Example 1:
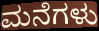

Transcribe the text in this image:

ಮನೆಗಳು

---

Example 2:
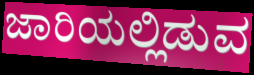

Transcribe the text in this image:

ಜಾರಿಯಲ್ಲಿಡುವ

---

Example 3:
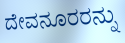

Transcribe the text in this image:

ದೇವನೂರರನ್ನು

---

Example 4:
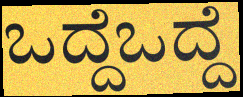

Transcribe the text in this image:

ಒದ್ದೆಒದ್ದೆ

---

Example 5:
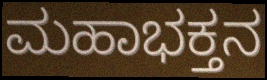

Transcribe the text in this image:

ಮಹಾಭಕ್ತನ